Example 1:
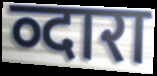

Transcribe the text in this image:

व्दारा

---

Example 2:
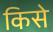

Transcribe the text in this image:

किसे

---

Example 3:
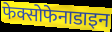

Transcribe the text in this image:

फेक्सोफेनाडाइन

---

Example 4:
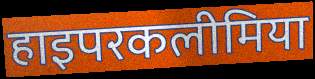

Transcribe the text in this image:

हाइपरकलीमिया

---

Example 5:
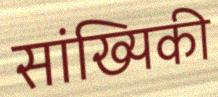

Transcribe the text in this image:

सांख्यिकी